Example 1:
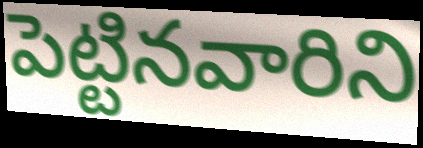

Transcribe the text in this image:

పెట్టినవారిని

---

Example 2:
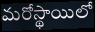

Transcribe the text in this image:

మరోస్థాయిలో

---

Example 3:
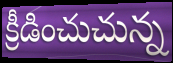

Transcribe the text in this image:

క్రీడించుచున్న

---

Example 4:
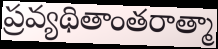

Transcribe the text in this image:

ప్రవ్యథితాంతరాత్మా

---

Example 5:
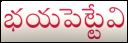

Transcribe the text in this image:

భయపెట్టేవి